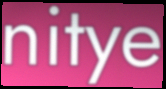
nitye